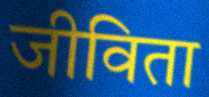
जीविता